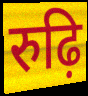
रुढ़ि